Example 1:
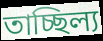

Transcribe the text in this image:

তাচ্ছিল্য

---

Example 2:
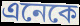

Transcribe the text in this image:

এনেকে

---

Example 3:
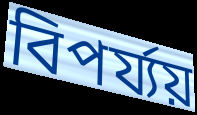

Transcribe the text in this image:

বিপৰ্য্যয়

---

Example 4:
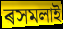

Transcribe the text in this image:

ৰসমলাই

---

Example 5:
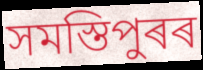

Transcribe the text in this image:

সমস্তিপুৰৰ